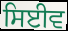
ਸਿਈਵ